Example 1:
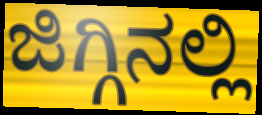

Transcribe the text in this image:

ಜಿಗ್ಗಿನಲ್ಲಿ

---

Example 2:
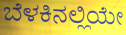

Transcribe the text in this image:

ಬೆಳಕಿನಲ್ಲಿಯೇ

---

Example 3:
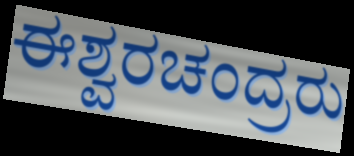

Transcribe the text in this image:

ಈಶ್ವರಚಂದ್ರರು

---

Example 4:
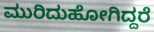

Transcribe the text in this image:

ಮುರಿದುಹೋಗಿದ್ದರೆ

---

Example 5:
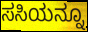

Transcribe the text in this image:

ಸಸಿಯನ್ನೂ